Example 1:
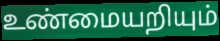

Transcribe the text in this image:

உண்மையறியும்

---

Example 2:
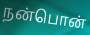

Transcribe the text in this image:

நன்பொன்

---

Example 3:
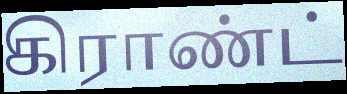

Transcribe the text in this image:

கிராண்ட்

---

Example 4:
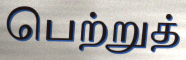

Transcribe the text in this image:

பெற்றுத்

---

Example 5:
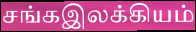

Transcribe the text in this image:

சங்கஇலக்கியம்